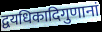
द्वयधिकादिगुणानां